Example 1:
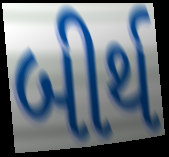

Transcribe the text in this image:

બીર્થ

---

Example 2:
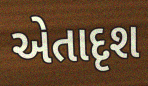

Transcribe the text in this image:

એતાદૃશ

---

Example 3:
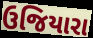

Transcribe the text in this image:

ઉજિયારા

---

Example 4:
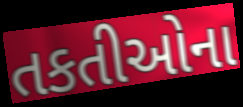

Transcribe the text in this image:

તકતીઓના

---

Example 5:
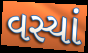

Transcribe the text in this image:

વસ્યાં